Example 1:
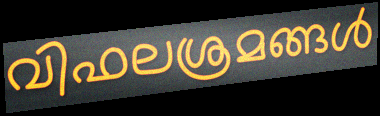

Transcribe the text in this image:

വിഫലശ്രമങ്ങൾ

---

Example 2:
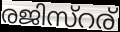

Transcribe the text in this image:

രജിസ്റര്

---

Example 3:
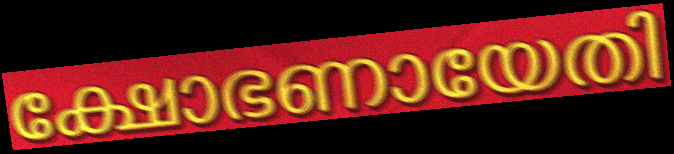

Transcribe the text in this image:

ക്ഷോഭണായേതി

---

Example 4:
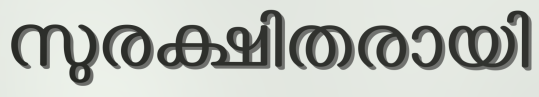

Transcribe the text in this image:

സുരക്ഷിതരായി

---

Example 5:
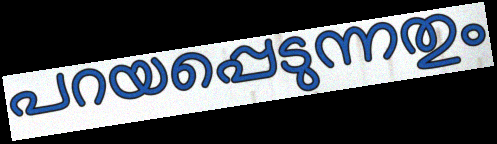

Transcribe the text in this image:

പറയപ്പെടുന്നതും